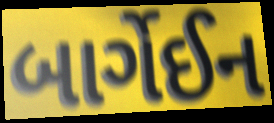
બાર્ગેઈન